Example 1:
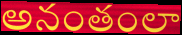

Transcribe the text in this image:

అనంతంలా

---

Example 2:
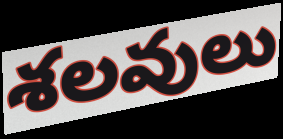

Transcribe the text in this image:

శలవులు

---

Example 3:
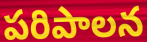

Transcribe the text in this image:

పరిపాలన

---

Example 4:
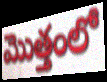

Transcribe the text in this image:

మొత్తంలో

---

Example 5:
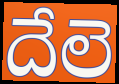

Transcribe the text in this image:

దేలె